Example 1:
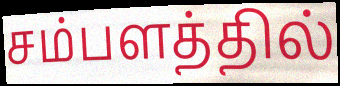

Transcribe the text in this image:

சம்பளத்தில்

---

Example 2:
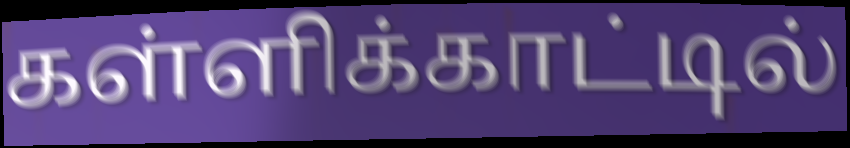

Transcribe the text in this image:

கள்ளிக்காட்டில்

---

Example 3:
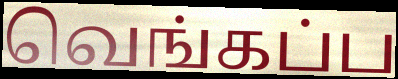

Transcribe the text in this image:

வெங்கப்ப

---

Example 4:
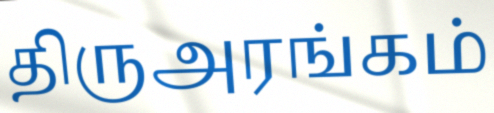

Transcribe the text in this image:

திருஅரங்கம்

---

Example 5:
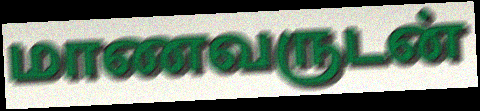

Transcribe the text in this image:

மாணவருடன்